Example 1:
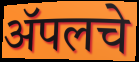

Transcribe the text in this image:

ॲपलचे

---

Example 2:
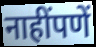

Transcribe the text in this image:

नाहींपणें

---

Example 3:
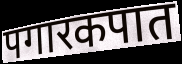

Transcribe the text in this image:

पगारकपात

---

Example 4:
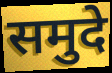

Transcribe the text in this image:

समुदे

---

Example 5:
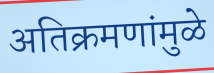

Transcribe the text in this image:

अतिक्रमणांमुळे